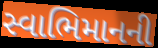
સ્વાભિમાનની